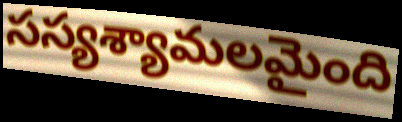
సస్యశ్యామలమైంది